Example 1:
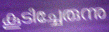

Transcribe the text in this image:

കൂടിച്ചേരുന്നു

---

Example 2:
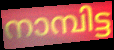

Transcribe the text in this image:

നാമ്പിട്ട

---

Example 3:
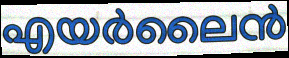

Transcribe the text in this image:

എയർലൈൻ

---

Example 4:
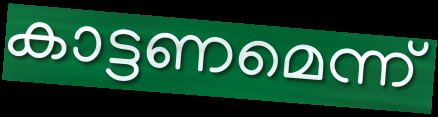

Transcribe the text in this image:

കാട്ടണമെന്ന്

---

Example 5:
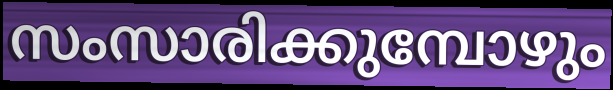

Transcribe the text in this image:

സംസാരിക്കുമ്പോഴും